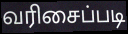
வரிசைப்படி